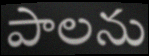
పాలను